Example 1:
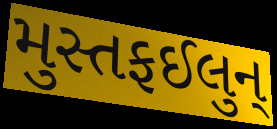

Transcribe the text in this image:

મુસ્તફઈલુન્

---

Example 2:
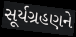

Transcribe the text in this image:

સૂર્યગ્રહણને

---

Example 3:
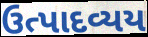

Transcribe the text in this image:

ઉત્પાદવ્યય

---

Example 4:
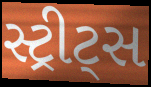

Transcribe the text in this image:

સ્ટ્રીટ્સ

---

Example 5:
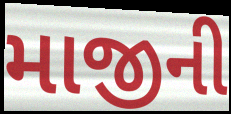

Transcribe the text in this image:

માજીની